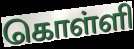
கொள்ளி